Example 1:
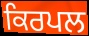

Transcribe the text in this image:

ਕਿਰਪਲ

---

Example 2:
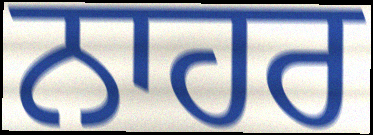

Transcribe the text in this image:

ਨਾਹਰ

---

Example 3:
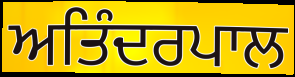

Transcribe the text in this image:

ਅਤਿੰਦਰਪਾਲ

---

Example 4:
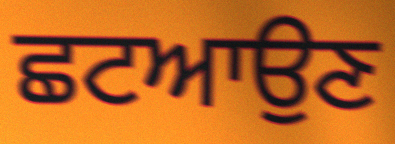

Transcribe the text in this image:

ਛਟਆਉਣ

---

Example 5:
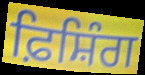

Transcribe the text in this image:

ਫ਼ਿਸ਼ਿੰਗ